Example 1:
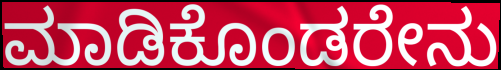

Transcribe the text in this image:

ಮಾಡಿಕೊಂಡರೇನು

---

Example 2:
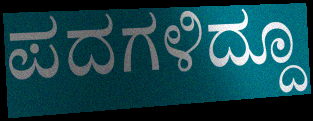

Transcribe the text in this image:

ಪದಗಳಿದ್ದೂ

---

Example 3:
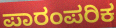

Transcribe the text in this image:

ಪಾರಂಪರಿಕ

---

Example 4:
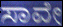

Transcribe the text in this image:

ಸಾವೇ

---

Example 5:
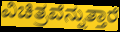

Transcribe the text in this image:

ವಿಚಿತ್ರವೆನ್ನುತ್ತಾರೆ